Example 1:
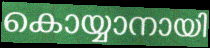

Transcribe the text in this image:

കൊയ്യാനായി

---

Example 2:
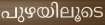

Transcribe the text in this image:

പുഴയിലൂടെ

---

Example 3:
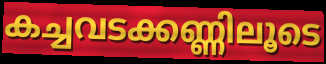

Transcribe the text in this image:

കച്ചവടക്കണ്ണിലൂടെ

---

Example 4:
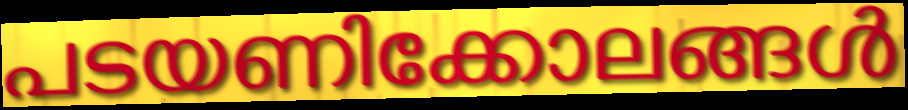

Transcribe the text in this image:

പടയണിക്കോലങ്ങൾ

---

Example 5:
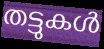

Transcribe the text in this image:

തട്ടുകൾ